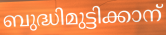
ബുദ്ധിമുട്ടിക്കാന്